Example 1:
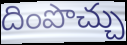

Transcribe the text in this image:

దింపొచ్చు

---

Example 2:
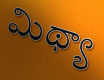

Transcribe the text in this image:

మిథ్యా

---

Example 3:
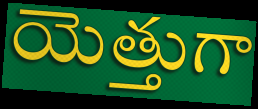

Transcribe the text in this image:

యెత్తుగా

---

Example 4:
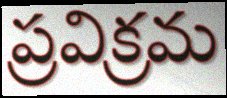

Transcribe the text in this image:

ప్రవిక్రమ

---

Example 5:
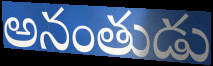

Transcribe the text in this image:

అనంతుడు